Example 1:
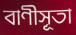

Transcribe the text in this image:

বাণীসূতা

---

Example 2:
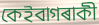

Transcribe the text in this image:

কেইবাগৰাকী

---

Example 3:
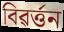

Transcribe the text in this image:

বিৱৰ্ত্তন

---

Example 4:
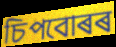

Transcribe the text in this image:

চিপবোৰৰ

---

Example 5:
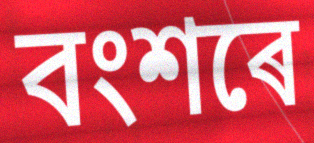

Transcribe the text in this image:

বংশৰে